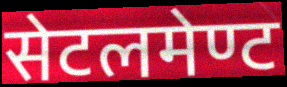
सेटलमेण्ट